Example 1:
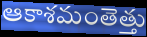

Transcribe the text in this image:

ఆకాశమంతెత్తు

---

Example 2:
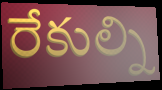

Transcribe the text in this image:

రేకుల్ని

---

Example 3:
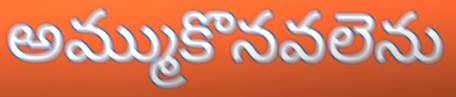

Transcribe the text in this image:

అమ్ముకొనవలెను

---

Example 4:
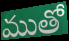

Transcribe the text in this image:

ముతో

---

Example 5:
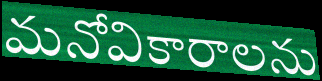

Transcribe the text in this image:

మనోవికారాలను